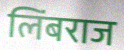
लिंबराज